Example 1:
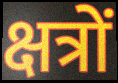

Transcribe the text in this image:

क्षत्रों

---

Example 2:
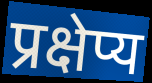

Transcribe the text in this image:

प्रक्षेप्य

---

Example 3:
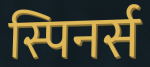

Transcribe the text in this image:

स्पिनर्स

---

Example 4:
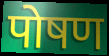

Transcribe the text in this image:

पोषण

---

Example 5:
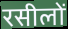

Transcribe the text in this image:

रसीलों